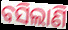
ବସିଲାଣି